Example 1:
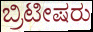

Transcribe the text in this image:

ಬ್ರಿಟೀಷರು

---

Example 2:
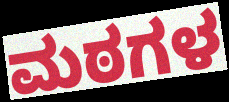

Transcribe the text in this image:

ಮಠಗಳ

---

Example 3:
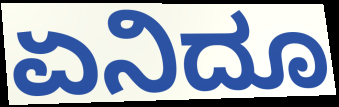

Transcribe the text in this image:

ಏನಿದೂ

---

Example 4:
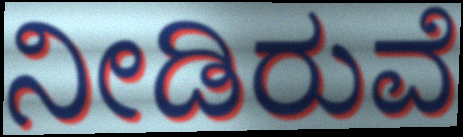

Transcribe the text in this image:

ನೀಡಿರುವೆ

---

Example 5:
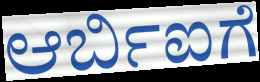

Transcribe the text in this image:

ಆರ್ಬಿಐಗೆ